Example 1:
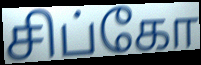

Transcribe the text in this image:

சிப்கோ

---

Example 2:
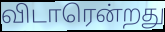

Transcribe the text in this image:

விடாரென்றது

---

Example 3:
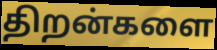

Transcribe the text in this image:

திறன்களை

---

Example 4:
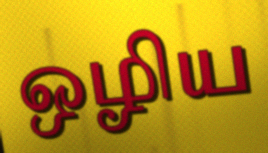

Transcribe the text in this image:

ஒழிய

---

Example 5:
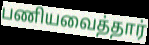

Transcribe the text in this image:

பணியவைத்தார்